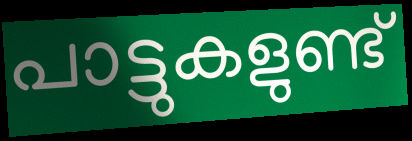
പാട്ടുകളുണ്ട്